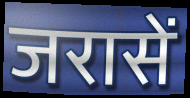
जरासें